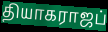
தியாகராஜப்